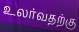
உலர்வதற்கு